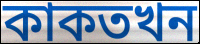
কাকতখন